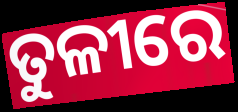
ତୁଳୀରେ